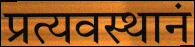
प्रत्यवस्थानं